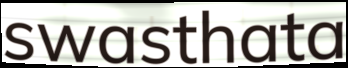
swasthata